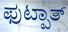
ಫುಟ್ಪಾತ್